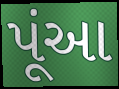
પૂંઆ